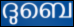
ദുബെ